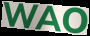
WAO